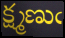
క్ష్మణుఁ